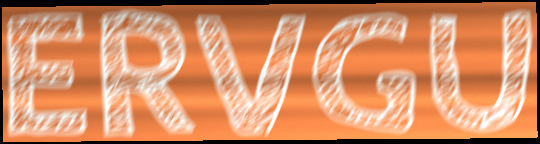
ERVGU